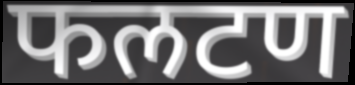
फलटण